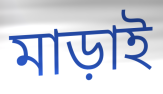
মাড়াই